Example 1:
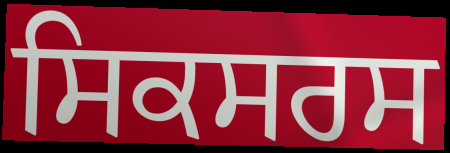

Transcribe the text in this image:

ਸਿਕਸਰਸ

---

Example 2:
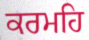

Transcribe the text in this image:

ਕਰਮਹਿ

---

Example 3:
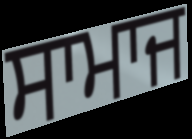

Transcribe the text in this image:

ਸਾਮਾਜ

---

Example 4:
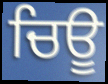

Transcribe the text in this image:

ਚਿਊ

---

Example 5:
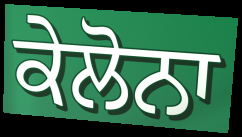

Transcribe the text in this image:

ਕੇਲੋਨਾ